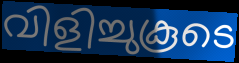
വിളിച്ചുകൂടെ